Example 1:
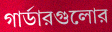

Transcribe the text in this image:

গার্ডারগুলোর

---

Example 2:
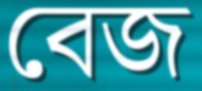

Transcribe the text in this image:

বেজ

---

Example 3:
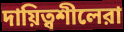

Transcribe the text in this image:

দায়িত্বশীলেরা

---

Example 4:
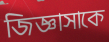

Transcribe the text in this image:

জিজ্ঞাসাকে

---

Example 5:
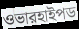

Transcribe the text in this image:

ওভারহাইপড